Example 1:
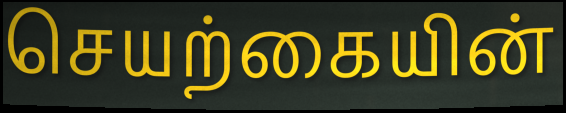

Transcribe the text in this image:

செயற்கையின்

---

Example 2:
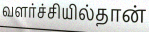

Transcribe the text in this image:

வளர்ச்சியில்தான்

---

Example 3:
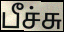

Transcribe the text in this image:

பீச்சு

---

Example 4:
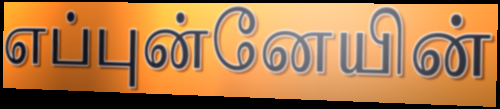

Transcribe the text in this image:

எப்புன்னேயின்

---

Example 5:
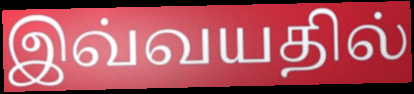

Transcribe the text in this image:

இவ்வயதில்